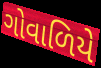
ગોવાળિયે